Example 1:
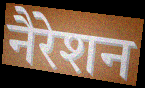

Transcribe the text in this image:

नैरेशन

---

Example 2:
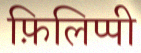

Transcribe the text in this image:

फ़िलिप्पी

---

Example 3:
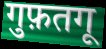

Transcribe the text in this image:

गुफ़तगू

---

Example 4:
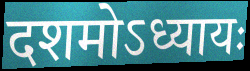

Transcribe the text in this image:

दशमोऽध्यायः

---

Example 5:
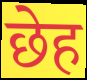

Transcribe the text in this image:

छेह